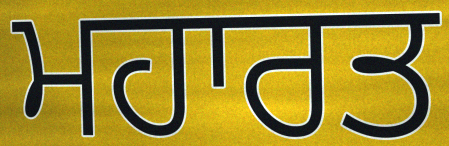
ਮਹਾਰਤ